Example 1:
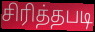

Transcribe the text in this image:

சிரித்தபடி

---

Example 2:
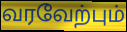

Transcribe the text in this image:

வரவேற்பும்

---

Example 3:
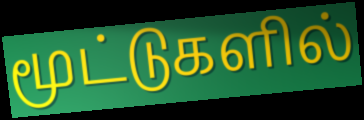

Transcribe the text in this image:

மூட்டுகளில்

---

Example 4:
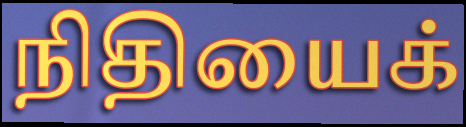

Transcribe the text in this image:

நிதியைக்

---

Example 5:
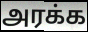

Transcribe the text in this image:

அரக்க